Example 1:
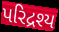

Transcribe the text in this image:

પરિદ્રશ્ય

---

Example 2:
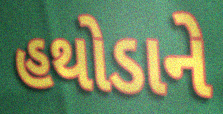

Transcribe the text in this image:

હથોડાને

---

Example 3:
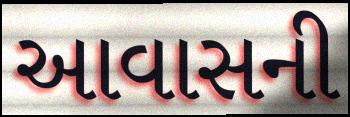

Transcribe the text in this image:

આવાસની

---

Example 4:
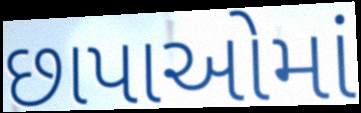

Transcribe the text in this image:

છાપાઓમાં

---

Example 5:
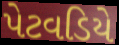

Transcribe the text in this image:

પેટવડિયે